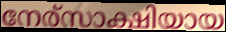
നേര്സാക്ഷിയായ